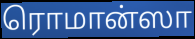
ரொமான்ஸா